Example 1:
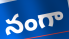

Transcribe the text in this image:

నంగా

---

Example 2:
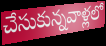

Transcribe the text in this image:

చేసుకున్నవాళ్లలో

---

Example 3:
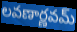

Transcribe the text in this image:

లవణార్ణవమ్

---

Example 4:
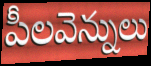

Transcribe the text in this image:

పీలవెన్నులు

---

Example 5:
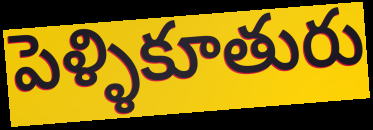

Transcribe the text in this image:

పెళ్ళికూతురు